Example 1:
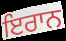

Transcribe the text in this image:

ਇਰਾਨ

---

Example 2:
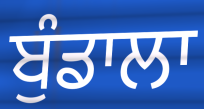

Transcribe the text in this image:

ਬੁੰਡਾਲਾ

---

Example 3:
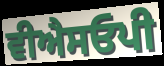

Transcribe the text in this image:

ਵੀਐਸਓਪੀ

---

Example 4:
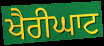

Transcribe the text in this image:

ਖੈਰੀਘਾਟ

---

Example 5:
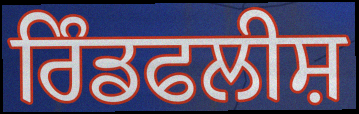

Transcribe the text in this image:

ਰਿੰਡਫਲੀਸ਼